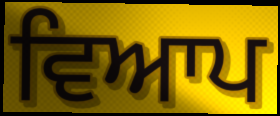
ਵਿਆਪ